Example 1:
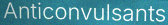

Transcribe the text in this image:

Anticonvulsants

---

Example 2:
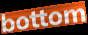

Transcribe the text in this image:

bottom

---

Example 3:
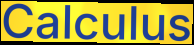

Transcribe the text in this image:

Calculus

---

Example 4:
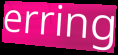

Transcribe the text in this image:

erring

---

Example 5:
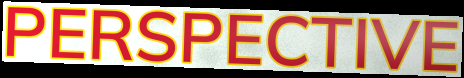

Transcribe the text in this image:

PERSPECTIVE